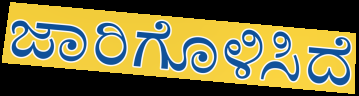
ಜಾರಿಗೊಳಿಸಿದೆ